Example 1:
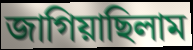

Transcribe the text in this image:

জাগিয়াছিলাম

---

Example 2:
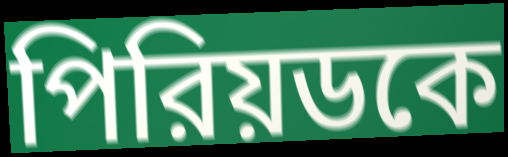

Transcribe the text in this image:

পিরিয়ডকে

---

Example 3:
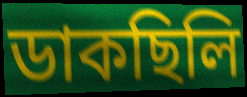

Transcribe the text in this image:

ডাকছিলি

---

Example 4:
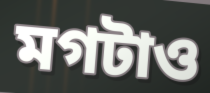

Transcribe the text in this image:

মগটাও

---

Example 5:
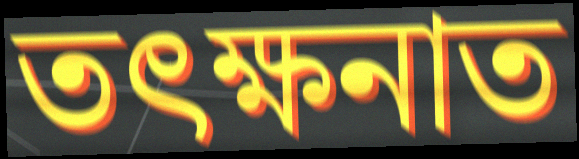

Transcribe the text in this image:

তৎক্ষনাত